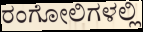
ರಂಗೋಲಿಗಳಲ್ಲಿ